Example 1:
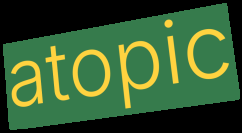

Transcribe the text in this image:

atopic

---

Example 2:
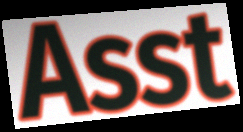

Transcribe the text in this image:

Asst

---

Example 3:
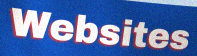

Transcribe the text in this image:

Websites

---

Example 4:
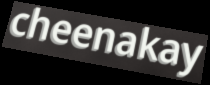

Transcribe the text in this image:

cheenakay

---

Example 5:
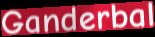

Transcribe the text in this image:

Ganderbal